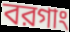
বরগাং